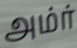
அம்ர்